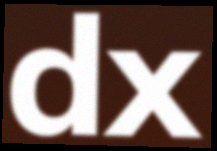
dx